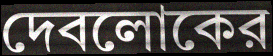
দেবলোকের